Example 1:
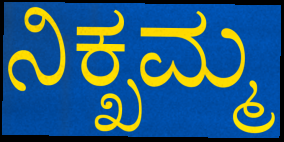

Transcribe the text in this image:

ನಿಕ್ಖಮ್ಮ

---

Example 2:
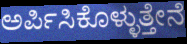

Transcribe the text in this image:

ಅರ್ಪಿಸಿಕೊಳ್ಳುತ್ತೇನೆ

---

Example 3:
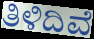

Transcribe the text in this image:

ತಿಳಿದಿವೆ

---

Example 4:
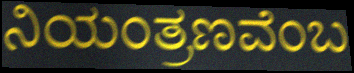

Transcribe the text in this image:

ನಿಯಂತ್ರಣವೆಂಬ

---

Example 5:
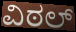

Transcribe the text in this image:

ವಿಠಲ್